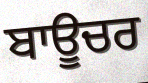
ਬਾਊਚਰ